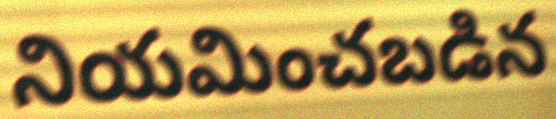
నియమించబడిన